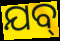
ଯବ୍